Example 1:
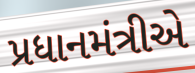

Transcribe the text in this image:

પ્રધાનમંત્રીએ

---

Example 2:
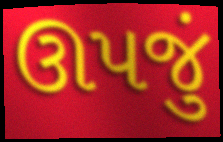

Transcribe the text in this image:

ઊપજું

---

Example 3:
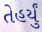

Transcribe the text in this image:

તેહર્યું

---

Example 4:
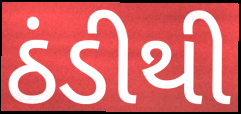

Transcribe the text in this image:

ઠંડીથી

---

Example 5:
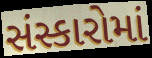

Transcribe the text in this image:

સંસ્કારોમાં